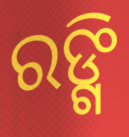
ରଙ୍ଗି